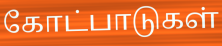
கோட்பாடுகள்